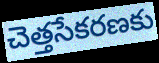
చెత్తసేకరణకు